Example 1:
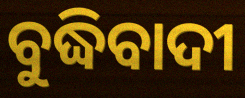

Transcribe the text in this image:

ବୁଦ୍ଧିବାଦୀ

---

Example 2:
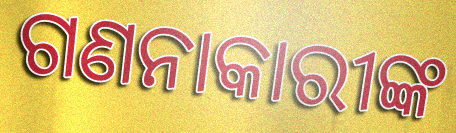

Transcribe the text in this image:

ଗଣନାକାରୀଙ୍କ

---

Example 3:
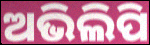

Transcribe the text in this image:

ଅଭିଲିପି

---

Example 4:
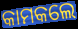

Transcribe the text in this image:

କାମକଲେ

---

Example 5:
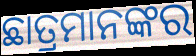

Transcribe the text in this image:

ଛାତ୍ରମାନଙ୍କର